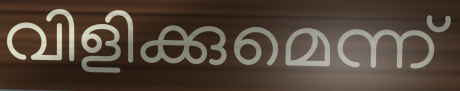
വിളിക്കുമെന്ന്